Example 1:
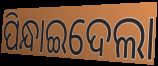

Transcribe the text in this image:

ପିନ୍ଧାଇଦେଲା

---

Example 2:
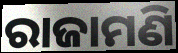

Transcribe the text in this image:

ରାଜାମଣି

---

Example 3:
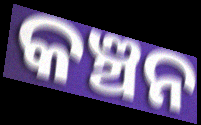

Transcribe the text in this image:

କଞ୍ଚନ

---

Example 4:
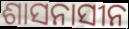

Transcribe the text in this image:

ଶାସନାସୀନ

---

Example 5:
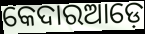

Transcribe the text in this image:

କେଦାରଆଡ଼େ